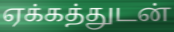
ஏக்கத்துடன்